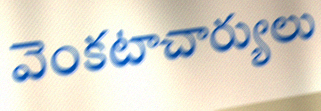
వెంకటాచార్యులు